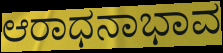
ಆರಾಧನಾಭಾವ